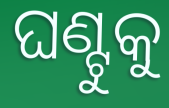
ଘଣ୍ଟୁକୁ